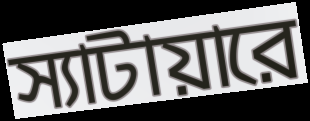
স্যাটায়ারে